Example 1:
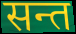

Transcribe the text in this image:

सन्त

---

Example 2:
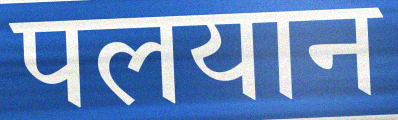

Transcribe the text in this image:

पलयान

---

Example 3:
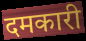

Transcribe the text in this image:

दमकारी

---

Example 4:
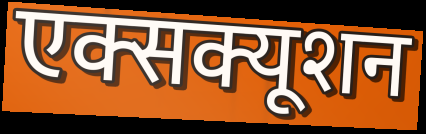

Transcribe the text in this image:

एक्सक्यूशन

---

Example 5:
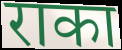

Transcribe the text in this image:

राका